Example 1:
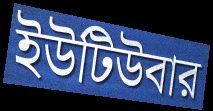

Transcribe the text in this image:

ইউটিউবার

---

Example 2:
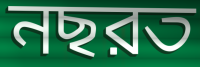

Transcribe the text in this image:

নছরত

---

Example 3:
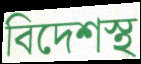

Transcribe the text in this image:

বিদেশস্থ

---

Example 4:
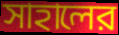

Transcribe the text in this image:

সাহালের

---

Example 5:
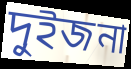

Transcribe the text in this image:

দুইজনা